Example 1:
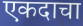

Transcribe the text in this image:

एकदाचा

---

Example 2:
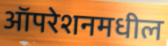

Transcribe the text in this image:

ऑपरेशनमधील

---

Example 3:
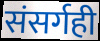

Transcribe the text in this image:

संसर्गही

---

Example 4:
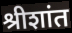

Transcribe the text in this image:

श्रीशांत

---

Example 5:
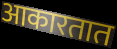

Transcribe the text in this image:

आकारतात